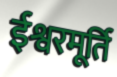
ईश्वरमूर्ति